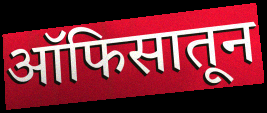
ऑफिसातून